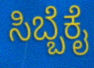
ಸಿಬ್ಬೆಕೈ